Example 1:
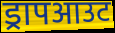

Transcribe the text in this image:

ड्रापआउट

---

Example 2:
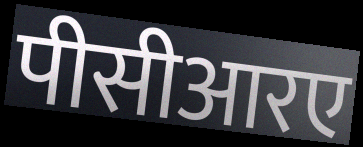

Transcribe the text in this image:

पीसीआरए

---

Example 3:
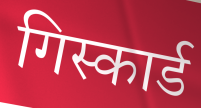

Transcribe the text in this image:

गिस्कार्ड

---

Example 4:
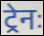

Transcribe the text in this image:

ट्रेनः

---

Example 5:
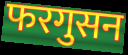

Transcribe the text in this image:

फरगुसन